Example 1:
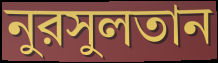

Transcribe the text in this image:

নুরসুলতান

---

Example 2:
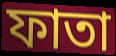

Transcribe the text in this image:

ফাতা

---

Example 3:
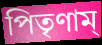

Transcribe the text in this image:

পিতৃণাম্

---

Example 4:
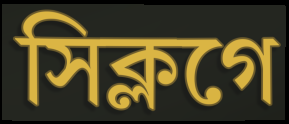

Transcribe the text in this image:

সিক্লগে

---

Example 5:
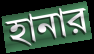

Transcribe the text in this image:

হানার